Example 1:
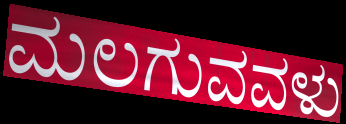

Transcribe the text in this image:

ಮಲಗುವವಳು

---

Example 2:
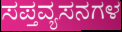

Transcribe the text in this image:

ಸಪ್ತವ್ಯಸನಗಳ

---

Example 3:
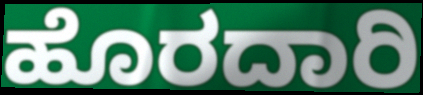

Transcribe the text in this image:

ಹೊರದಾರಿ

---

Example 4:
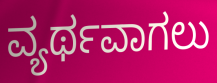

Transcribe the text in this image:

ವ್ಯರ್ಥವಾಗಲು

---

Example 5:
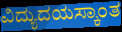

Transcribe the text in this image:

ವಿದ್ಯುದಯಸ್ಕಾಂತ